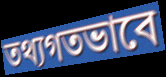
তথ্যগতভাবে